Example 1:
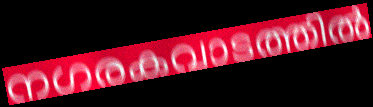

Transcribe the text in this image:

നഗരകവാടത്തിൽ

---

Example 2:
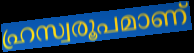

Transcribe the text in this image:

ഹ്രസ്വരൂപമാണ്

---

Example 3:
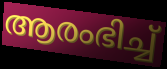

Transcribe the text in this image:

ആരംഭിച്ച്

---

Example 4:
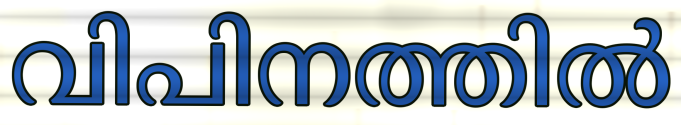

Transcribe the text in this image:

വിപിനത്തിൽ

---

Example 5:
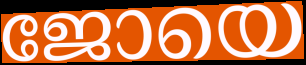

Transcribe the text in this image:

ജോയെ